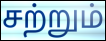
சற்றும்